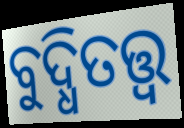
ବୁଦ୍ଧିତତ୍ତ୍ବ